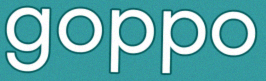
goppo